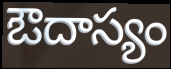
ఔదాస్యం